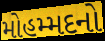
મોહમ્મદનો